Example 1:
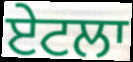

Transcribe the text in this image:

ਏਟਲਾ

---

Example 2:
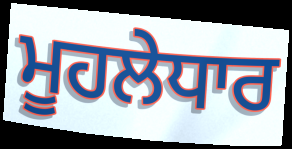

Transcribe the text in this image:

ਮੂਹਲੇਧਾਰ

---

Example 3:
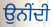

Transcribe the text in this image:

ਉਨੀਂਦੀ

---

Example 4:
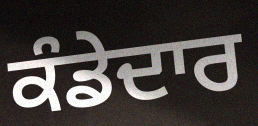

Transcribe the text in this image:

ਕੰਡੇਦਾਰ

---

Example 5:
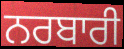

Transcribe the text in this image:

ਨਰਬਾਰੀ